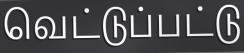
வெட்டுப்பட்டு